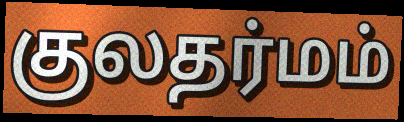
குலதர்மம்